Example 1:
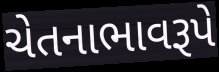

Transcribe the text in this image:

ચેતનાભાવરૂપે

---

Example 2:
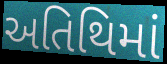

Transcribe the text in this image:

અતિથિમાં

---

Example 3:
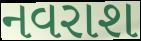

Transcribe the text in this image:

નવરાશ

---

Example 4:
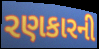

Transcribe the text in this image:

રણકારની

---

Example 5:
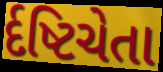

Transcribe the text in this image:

ર્દષ્ટિચેતા